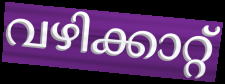
വഴിക്കാറ്റ്